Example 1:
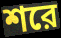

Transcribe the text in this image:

শরে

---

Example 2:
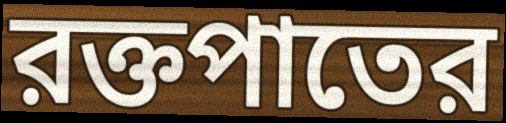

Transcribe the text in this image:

রক্তপাতের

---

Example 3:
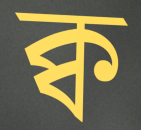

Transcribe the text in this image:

ক্ব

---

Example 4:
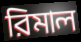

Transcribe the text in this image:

রিমাল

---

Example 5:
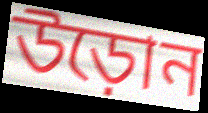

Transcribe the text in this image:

উড়োন